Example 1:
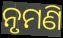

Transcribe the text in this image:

ନୃମଣି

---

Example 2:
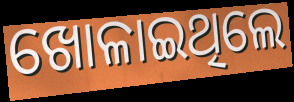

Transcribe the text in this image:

ଖୋଳାଇଥିଲେ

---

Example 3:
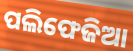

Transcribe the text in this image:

ପଲିଫେଜିଆ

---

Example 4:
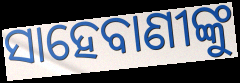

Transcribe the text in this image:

ସାହେବାଣୀଙ୍କୁ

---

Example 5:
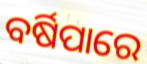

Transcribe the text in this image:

ବର୍ଷିପାରେ